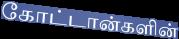
கோட்டான்களின்